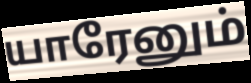
யாரேனும்